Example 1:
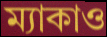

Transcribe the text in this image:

ম্যাকাও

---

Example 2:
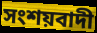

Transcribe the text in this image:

সংশয়বাদী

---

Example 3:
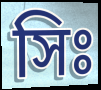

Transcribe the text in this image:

সিঃ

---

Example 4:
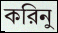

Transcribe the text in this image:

করিনু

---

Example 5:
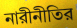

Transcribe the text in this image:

নারীনীতির